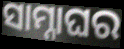
ସାମ୍ନାଘର